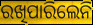
ରଖିପାରିଲେନି